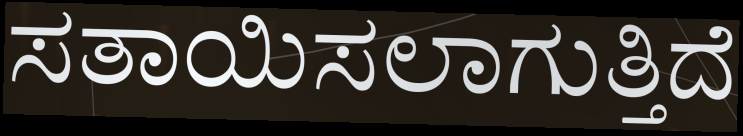
ಸತಾಯಿಸಲಾಗುತ್ತಿದೆ